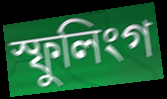
স্ফুলিংগ